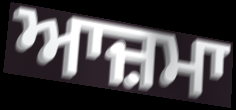
ਆਜ਼ਮਾ